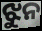
ଝୁନ